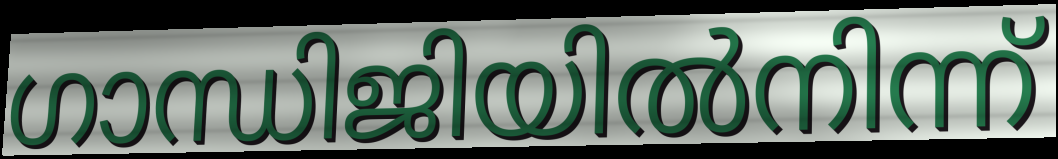
ഗാന്ധിജിയിൽനിന്ന്